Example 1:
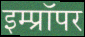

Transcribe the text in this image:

इम्प्रॉपर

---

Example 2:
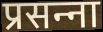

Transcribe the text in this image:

प्रसन्ना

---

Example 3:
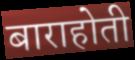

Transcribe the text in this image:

बाराहोती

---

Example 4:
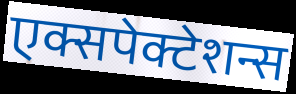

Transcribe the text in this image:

एक्सपेक्टेशन्स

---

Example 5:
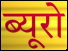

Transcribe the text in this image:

ब्‍यूरो